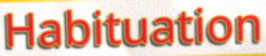
Habituation